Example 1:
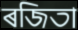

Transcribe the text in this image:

ৰজিতা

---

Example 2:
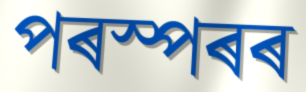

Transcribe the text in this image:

পৰস্পৰৰ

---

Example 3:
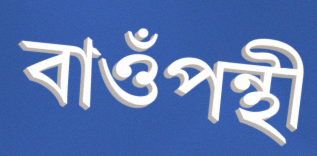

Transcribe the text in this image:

বাওঁপন্থী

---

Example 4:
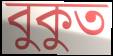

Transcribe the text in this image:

বুকুত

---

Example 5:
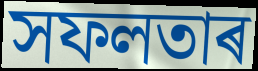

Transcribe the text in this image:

সফলতাৰ